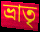
ভ্ৰাতৃ